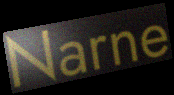
Narne